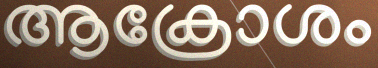
ആക്രോശം